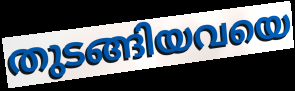
തുടങ്ങിയവയെ